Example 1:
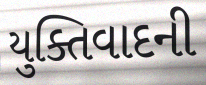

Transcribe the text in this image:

યુક્તિવાદની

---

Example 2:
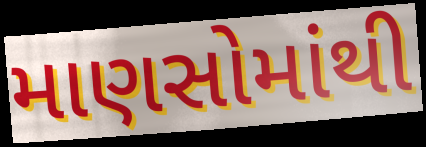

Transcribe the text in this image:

માણસોમાંથી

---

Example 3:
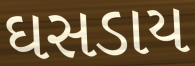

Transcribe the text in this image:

ઘસડાય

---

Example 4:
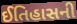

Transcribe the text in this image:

ઈતિહાસની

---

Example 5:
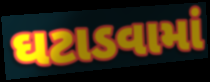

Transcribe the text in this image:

ઘટાડવામાં